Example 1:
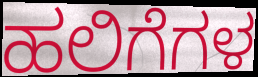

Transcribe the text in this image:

ಹಲಿಗೆಗಳ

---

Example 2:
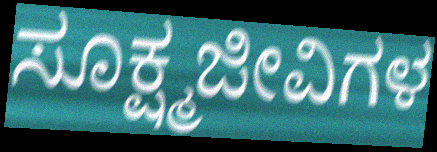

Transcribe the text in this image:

ಸೂಕ್ಷ್ಮಜೀವಿಗಳ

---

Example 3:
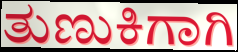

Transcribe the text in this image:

ತುಣುಕಿಗಾಗಿ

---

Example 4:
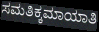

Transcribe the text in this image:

ಸಮತಿಕ್ಕಮಾಯಾತಿ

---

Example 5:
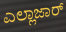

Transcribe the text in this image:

ಎಲ್ಲಾಜಾರ್